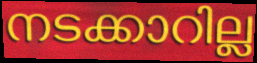
നടക്കാറില്ല